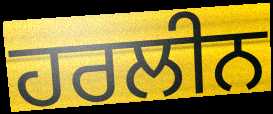
ਹਰਲੀਨ